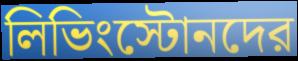
লিভিংস্টোনদের